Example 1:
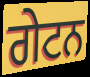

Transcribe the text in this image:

ਗੇਟਨ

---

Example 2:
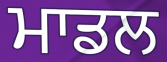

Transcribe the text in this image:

ਮਾਡਲ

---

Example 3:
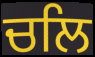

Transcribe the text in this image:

ਚਲਿ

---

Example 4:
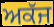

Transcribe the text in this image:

ਅਕੱਜ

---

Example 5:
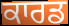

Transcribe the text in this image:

ਕਾਰਡ